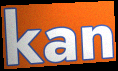
kan